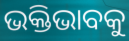
ଭକ୍ତିଭାବକୁ